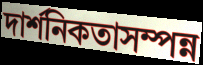
দার্শনিকতাসম্পন্ন